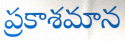
ప్రకాశమాన